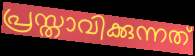
പ്രസ്താവിക്കുന്നത്